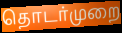
தொடர்முறை